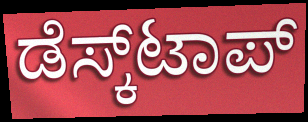
ಡೆಸ್ಕ್‌ಟಾಪ್